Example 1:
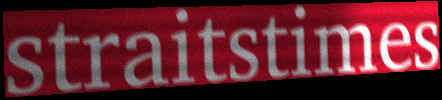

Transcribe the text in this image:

straitstimes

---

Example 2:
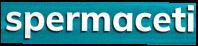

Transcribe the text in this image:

spermaceti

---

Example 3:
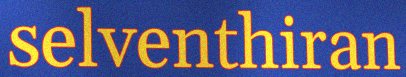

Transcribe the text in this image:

selventhiran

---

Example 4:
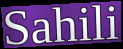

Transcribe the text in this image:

Sahili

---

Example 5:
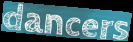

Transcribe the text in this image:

dancers